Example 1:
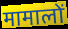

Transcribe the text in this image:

मामालों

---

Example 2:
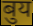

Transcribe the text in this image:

बुय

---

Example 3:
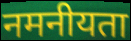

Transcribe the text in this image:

नमनीयता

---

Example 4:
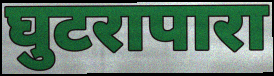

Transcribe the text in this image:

घुटरापारा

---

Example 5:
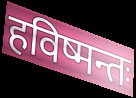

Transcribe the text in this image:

हविष्मन्तः